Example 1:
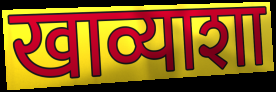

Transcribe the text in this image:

खाव्याशा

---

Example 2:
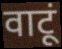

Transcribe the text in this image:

वाटूं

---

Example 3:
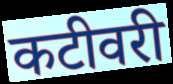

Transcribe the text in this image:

कटीवरी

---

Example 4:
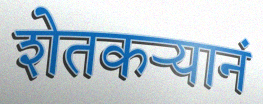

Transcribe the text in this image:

शेतकऱ्यानं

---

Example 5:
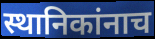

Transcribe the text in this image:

स्थानिकांनाच